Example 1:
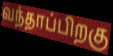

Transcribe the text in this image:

வந்தாப்பிறகு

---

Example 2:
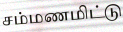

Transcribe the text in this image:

சம்மணமிட்டு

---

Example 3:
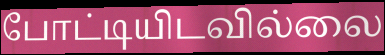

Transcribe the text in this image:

போட்டியிடவில்லை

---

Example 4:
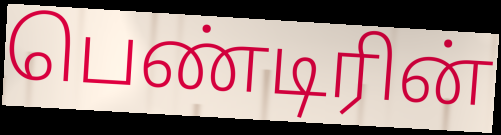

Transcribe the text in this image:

பெண்டிரின்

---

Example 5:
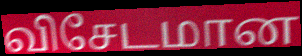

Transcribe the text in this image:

விசேடமான